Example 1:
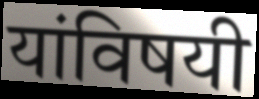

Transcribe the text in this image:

यांविषयी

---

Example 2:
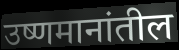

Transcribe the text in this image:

उष्णमानांतील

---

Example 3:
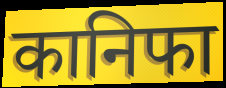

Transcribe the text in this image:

कानिफा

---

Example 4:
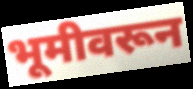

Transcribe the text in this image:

भूमीवरून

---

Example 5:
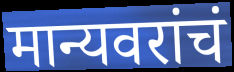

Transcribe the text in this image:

मान्यवरांचं